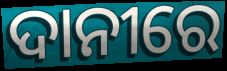
ଦାନୀରେ